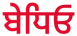
ਬੇਧਿਓ